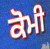
ਕੋਮੀ